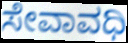
ಸೇವಾವಧಿ